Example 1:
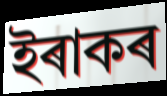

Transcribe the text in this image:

ইৰাকৰ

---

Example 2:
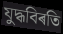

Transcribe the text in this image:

যুদ্ধবিৰতি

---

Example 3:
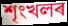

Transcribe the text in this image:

শৃংখলৰ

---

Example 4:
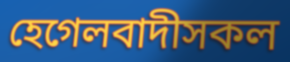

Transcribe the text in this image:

হেগেলবাদীসকল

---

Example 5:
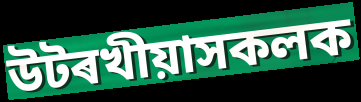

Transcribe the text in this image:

উটৰখীয়াসকলক